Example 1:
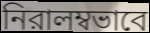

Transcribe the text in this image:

নিরালম্বভাবে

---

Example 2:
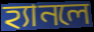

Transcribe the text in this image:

হ্যানলে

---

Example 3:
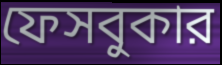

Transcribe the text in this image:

ফেসবুকার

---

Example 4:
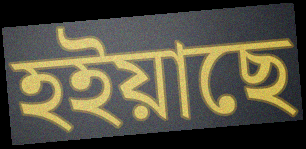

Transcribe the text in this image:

হইয়াছে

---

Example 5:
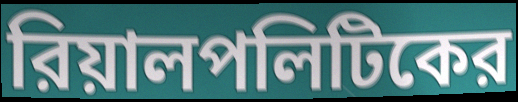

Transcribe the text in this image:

রিয়ালপলিটিকের